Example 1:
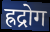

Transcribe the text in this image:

ह्रद्रोग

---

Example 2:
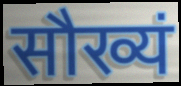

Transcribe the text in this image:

सौख्यं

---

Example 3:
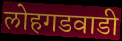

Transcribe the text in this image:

लोहगडवाडी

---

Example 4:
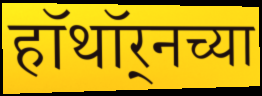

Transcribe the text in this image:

हॉथॉर्नच्या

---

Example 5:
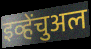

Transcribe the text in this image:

इव्हेंचुअल